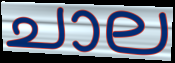
ചാല